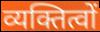
व्यक्तित्वों